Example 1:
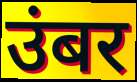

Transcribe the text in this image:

उंबर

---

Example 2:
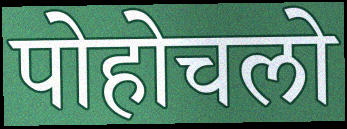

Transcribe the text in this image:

पोहोचलो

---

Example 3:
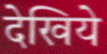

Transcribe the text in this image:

देखिये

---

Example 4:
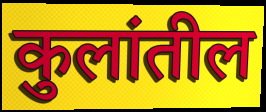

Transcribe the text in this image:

कुलांतील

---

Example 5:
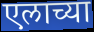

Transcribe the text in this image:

एलाच्या